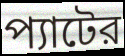
প্যাটের